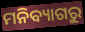
ମନିବ୍ୟାଗରୁ